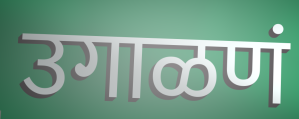
उगाळणं